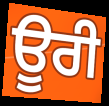
ਊਰੀ